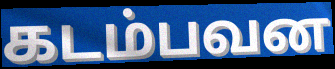
கடம்பவன